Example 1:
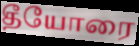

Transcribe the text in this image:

தீயோரை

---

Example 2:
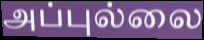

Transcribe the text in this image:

அப்புல்லை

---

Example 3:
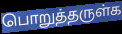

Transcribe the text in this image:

பொறுத்தருள்க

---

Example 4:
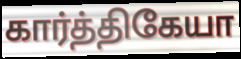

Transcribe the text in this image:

கார்த்திகேயா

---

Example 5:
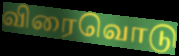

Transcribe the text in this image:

விரைவொடு